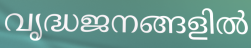
വൃദ്ധജനങ്ങളിൽ